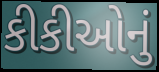
કીકીઓનું